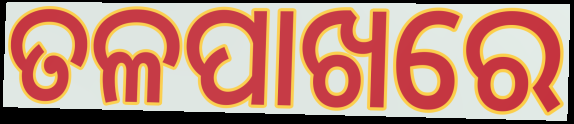
ତଳପାଖରେ